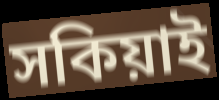
সকিয়াই